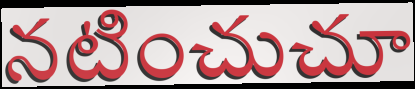
నటించుచూ